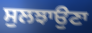
ਸੁਲਝਾਉਣਾ